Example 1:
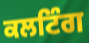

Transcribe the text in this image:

ਕਲਟਿੰਗ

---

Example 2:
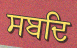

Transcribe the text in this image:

ਸਬਦਿ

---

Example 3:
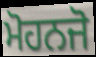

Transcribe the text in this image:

ਮੋਹਨਜੋ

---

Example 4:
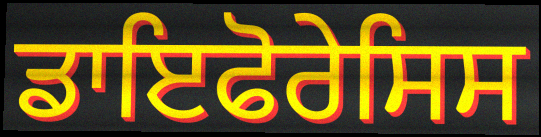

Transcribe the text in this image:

ਡਾਇਫੋਰੇਸਿਸ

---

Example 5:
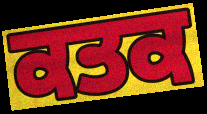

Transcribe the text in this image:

ਕਤਕ